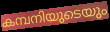
കമ്പനിയുടെയും